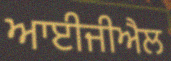
ਆਈਜੀਐਲ